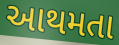
આથમતા